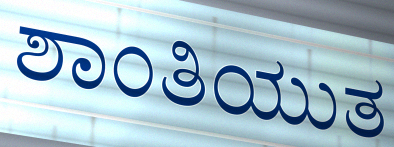
ಶಾಂತಿಯುತ